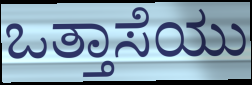
ಒತ್ತಾಸೆಯು